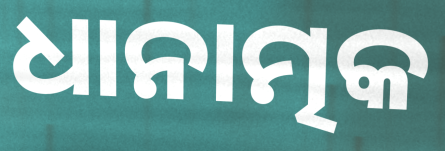
ଧାନାତ୍ମକ